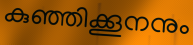
കുഞ്ഞിക്കൂനനും